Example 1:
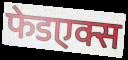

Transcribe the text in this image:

फेडएक्स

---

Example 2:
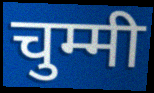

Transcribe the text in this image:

चुम्मी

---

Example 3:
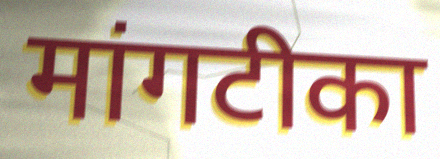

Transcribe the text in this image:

मांगटीका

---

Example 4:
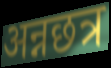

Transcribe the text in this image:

अन्नछत्र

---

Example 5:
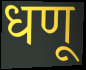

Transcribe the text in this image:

धणू